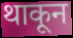
थाकून